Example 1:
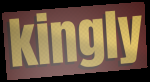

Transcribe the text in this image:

kingly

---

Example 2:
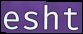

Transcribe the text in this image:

esht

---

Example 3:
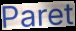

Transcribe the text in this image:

Paret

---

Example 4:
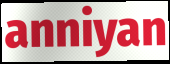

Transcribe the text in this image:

anniyan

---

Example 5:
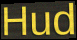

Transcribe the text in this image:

Hud